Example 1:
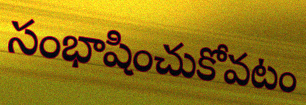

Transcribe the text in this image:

సంభాషించుకోవటం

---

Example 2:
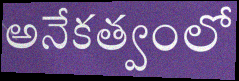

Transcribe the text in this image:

అనేకత్వంలో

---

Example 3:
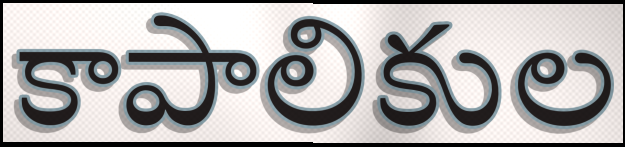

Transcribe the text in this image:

కాపాలికుల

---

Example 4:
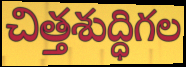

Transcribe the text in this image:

చిత్తశుద్ధిగల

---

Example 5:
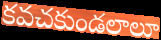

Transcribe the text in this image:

కవచకుండలాలూ